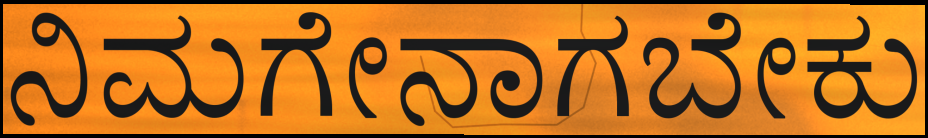
ನಿಮಗೇನಾಗಬೇಕು